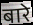
बारे